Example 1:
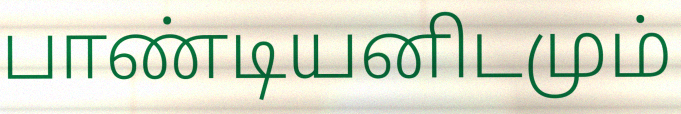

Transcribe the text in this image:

பாண்டியனிடமும்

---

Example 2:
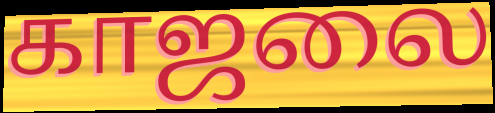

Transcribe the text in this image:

காஜலை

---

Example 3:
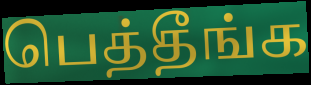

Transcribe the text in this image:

பெத்தீங்க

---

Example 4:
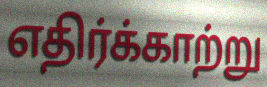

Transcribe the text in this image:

எதிர்க்காற்று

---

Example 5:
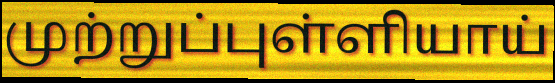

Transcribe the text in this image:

முற்றுப்புள்ளியாய்